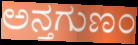
ಅನ್ತಗುಣಂ